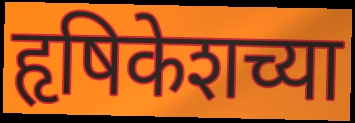
हृषिकेशच्या